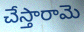
చేస్తారామె